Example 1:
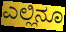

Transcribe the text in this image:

ಎಲ್ಲಿನೂ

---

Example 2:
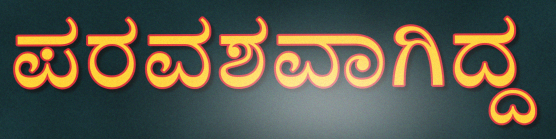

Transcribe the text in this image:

ಪರವಶವಾಗಿದ್ದ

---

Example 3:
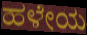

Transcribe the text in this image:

ಹಳೇಯ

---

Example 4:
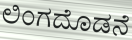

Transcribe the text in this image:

ಲಿಂಗದೊಡನೆ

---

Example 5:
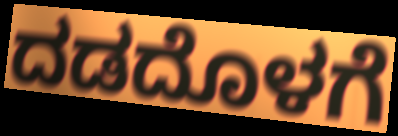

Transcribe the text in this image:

ದಡದೊಳಗೆ